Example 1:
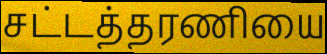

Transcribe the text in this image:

சட்டத்தரணியை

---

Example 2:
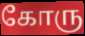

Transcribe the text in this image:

கோரு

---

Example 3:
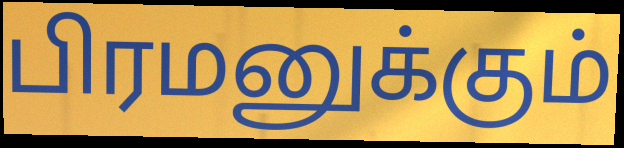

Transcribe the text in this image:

பிரமனுக்கும்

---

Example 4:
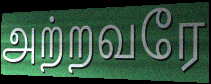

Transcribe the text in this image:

அற்றவரே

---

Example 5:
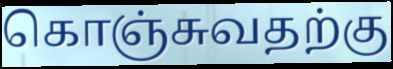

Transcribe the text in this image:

கொஞ்சுவதற்கு